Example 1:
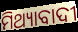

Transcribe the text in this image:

ମିଥ୍ୟାବାଦୀ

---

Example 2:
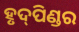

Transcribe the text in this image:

ହୃଦ୍‌ପିଣ୍ଡର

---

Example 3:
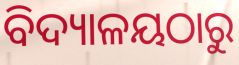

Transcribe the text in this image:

ବିଦ୍ୟାଳୟଠାରୁ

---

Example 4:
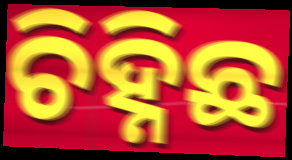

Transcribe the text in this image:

ଚିହ୍ନିଛ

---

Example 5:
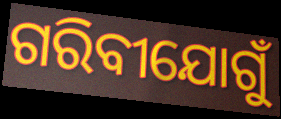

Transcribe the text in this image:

ଗରିବୀଯୋଗୁଁ